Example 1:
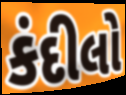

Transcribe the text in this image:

કંદીલો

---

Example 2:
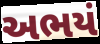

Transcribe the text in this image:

અભયં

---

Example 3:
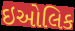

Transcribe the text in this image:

ઇઓલિક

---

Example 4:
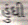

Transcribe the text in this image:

હુંધી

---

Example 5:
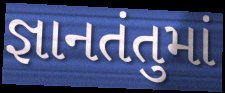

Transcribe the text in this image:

જ્ઞાનતંતુમાં